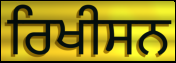
ਰਿਖੀਸਨ